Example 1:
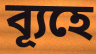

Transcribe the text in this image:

ব্যূহে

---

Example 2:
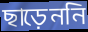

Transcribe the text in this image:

ছাড়েননি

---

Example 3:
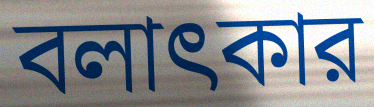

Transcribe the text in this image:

বলাৎকার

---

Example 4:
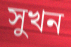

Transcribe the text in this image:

সুখন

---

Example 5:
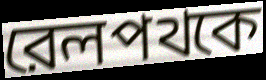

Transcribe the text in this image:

রেলপথকে